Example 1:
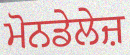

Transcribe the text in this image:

ਮੋਨਡੇਲੇਜ਼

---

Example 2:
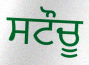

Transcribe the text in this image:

ਸਟੌਚੂ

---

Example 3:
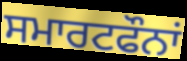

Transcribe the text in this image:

ਸਮਾਰਟਫੌਨਾਂ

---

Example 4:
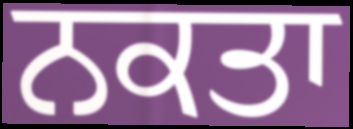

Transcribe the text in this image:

ਨਕਤਾ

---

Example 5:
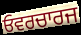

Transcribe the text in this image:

ਓਵਰਚਾਰਜ